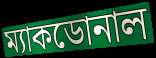
ম্যাকডোনাল